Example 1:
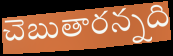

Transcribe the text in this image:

చెబుతారన్నది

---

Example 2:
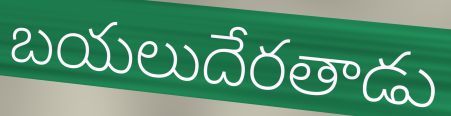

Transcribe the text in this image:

బయలుదేరతాడు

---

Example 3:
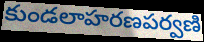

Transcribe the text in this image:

కుండలాహరణపర్వణి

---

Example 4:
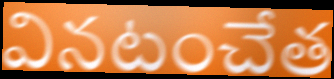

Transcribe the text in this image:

వినటంచేత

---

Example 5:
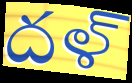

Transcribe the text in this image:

దళ్